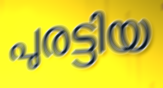
പുരട്ടിയ